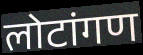
लोटांगण